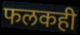
फलकही